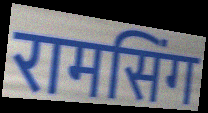
रामसिंग